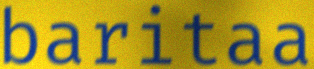
baritaa